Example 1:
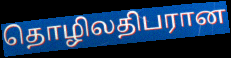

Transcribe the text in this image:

தொழிலதிபரான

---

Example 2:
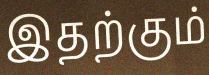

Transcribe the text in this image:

இதற்கும்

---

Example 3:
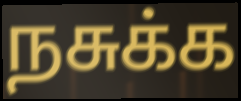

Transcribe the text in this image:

நசுக்க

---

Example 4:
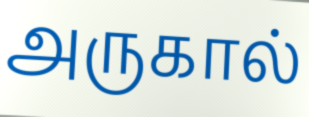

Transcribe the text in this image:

அருகால்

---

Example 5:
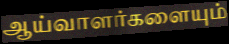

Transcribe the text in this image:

ஆய்வாளர்களையும்